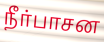
நீர்பாசன